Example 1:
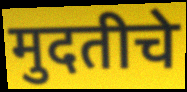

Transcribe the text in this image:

मुदतीचे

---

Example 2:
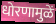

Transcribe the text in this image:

धोरणामुळें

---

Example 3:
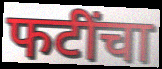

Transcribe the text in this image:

फटींचा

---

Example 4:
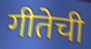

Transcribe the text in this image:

गीतेची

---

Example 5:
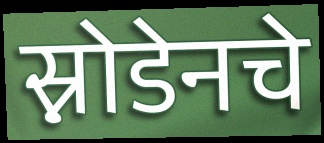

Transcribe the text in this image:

स्नोडेनचे